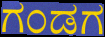
ಗಂಡಗ